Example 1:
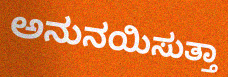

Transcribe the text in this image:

ಅನುನಯಿಸುತ್ತಾ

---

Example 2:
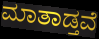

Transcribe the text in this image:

ಮಾತಾಡ್ತವೆ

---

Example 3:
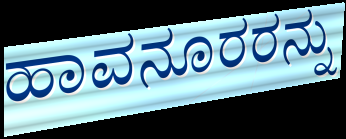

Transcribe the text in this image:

ಹಾವನೂರರನ್ನು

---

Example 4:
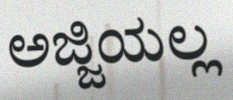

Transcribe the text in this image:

ಅಜ್ಜಿಯಲ್ಲ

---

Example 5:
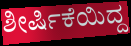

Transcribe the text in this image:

ಶೀರ್ಷಿಕೆಯಿದ್ದ